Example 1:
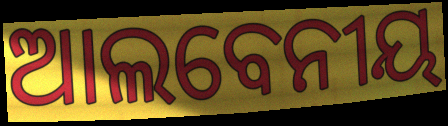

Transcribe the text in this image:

ଆଲବେନୀୟ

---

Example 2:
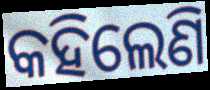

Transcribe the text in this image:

କହିଲେଣି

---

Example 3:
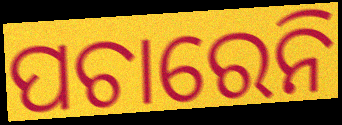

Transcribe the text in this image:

ପଚାରେନି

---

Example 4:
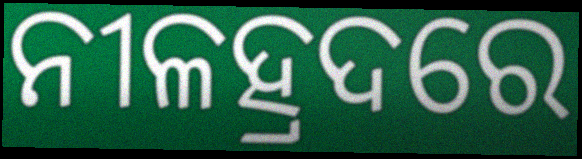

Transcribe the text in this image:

ନୀଳହ୍ରଦରେ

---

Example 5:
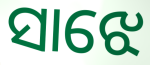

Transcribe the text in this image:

ସାଝେ